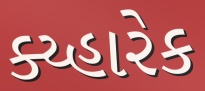
ક્ય્હારેક